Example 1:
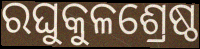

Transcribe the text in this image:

ରଘୁକୁଳଶ୍ରେଷ୍ଠ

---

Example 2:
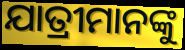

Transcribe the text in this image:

ଯାତ୍ରୀମାନଙ୍କୁ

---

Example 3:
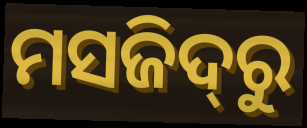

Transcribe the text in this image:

ମସଜିଦ୍‌ରୁ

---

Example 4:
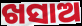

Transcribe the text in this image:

ଖସାଅ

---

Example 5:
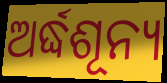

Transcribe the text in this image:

ଅର୍ଦ୍ଧଶୂନ୍ୟ